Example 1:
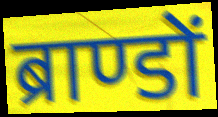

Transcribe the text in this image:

ब्राण्डों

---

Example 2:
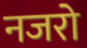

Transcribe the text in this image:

नजरो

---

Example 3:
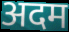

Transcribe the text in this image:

अदम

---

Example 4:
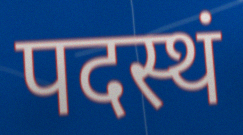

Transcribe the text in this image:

पदस्थं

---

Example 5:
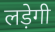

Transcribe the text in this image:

लड़ेगी